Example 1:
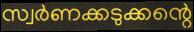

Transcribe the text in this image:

സ്വർണക്കടുക്കന്റെ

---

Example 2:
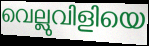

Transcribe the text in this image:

വെല്ലുവിളിയെ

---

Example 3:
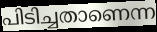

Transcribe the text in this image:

പിടിച്ചതാണെന്ന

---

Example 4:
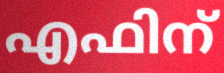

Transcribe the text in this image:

എഫിന്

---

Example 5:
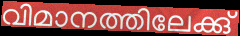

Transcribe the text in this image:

വിമാനത്തിലേക്കു്